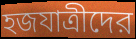
হজযাত্রীদের